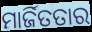
ମାର୍ଜିତତାର